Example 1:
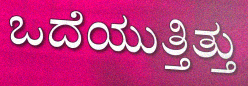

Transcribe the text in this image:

ಒದೆಯುತ್ತಿತ್ತು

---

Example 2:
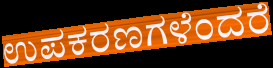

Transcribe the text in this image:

ಉಪಕರಣಗಳೆಂದರೆ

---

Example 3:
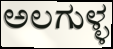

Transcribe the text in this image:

ಅಲಗುಳ್ಳ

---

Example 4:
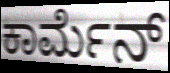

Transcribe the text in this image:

ಕಾರ್ಮೆನ್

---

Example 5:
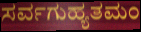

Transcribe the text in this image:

ಸರ್ವಗುಹ್ಯತಮಂ